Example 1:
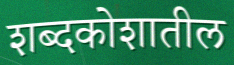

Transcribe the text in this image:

शब्दकोशातील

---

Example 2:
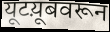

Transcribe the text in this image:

यूटय़ूबवरून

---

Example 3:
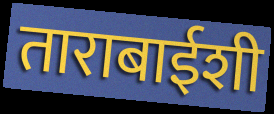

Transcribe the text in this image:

ताराबाईशी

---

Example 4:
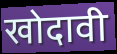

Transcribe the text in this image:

खोदावी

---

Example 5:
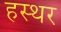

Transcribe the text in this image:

हस्थर